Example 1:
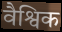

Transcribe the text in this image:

वैश्विक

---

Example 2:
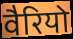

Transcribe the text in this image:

वैरियो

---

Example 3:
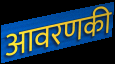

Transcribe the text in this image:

आवरणकी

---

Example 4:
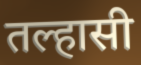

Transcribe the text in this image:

तल्हासी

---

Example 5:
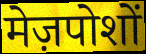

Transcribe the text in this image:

मेज़पोशों